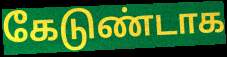
கேடுண்டாக